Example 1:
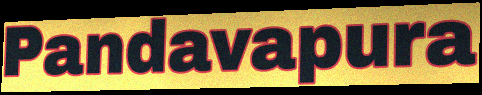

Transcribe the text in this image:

Pandavapura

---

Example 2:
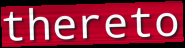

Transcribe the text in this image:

thereto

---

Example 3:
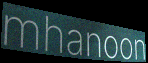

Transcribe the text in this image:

mhanoon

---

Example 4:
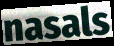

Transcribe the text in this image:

nasals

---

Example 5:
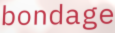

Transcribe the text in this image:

bondage